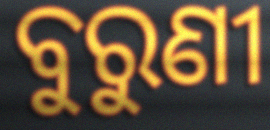
ବୁରୁଣୀ